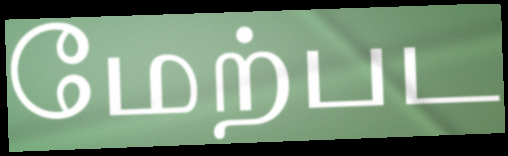
மேற்பட